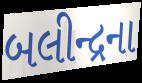
બલીન્દ્રના